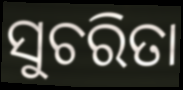
ସୁଚରିତା